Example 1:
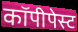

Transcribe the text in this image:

कॉपीपेस्ट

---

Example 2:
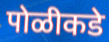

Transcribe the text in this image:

पोळीकडे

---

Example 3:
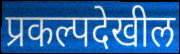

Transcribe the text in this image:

प्रकल्पदेखील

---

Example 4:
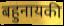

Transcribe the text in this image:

बहुनायकी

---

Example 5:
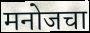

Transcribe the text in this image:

मनोजचा